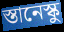
স্তানেস্কু